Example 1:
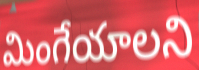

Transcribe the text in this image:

మింగేయాలని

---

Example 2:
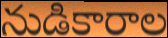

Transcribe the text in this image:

నుడికారాల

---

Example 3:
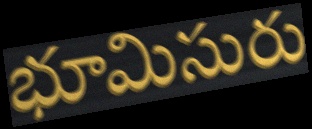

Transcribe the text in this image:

భూమిసురు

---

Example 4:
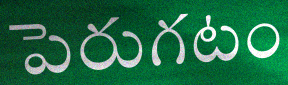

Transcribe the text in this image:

పెరుగటం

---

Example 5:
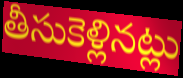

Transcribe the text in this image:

తీసుకెళ్లినట్లు